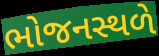
ભોજનસ્થળે